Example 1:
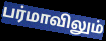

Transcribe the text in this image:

பர்மாவிலும்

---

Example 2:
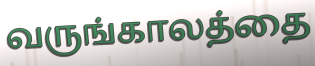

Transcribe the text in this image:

வருங்காலத்தை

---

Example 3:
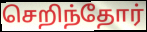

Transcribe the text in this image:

செறிந்தோர்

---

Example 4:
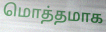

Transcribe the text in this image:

மொத்தமாக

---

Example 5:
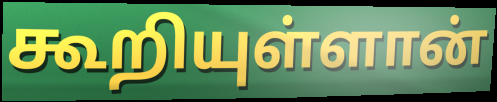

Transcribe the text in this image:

கூறியுள்ளான்